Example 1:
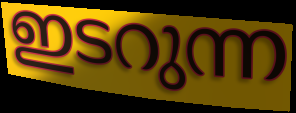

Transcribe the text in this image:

ഇടറുന്ന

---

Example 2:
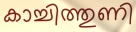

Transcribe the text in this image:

കാച്ചിത്തുണി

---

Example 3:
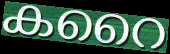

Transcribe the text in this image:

കറൈ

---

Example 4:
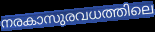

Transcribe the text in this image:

നരകാസുരവധത്തിലെ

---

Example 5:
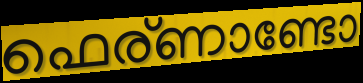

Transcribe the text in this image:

ഫെര്ണാണ്ടോ